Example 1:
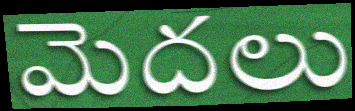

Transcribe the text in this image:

మెదలు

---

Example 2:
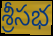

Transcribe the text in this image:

శ్రీసభ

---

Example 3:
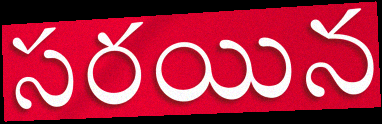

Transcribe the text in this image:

సరయిన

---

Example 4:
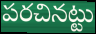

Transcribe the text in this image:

పరచినట్టు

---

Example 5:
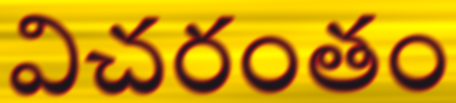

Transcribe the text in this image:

విచరంతం